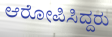
ಆರೋಪಿಸಿದ್ದರು